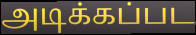
அடிக்கப்பட